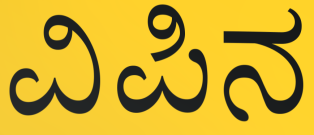
ವಿಪಿನ